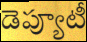
డెప్యూటీ